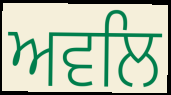
ਅਵਲਿ